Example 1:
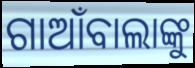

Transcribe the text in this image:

ଗାଆଁବାଲାଙ୍କୁ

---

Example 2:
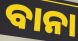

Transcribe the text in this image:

ବାନା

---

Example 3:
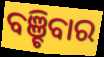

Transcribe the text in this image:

ବଞ୍ଚିବାର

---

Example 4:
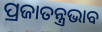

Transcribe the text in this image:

ପ୍ରଜାତନ୍ତ୍ରଭାବ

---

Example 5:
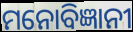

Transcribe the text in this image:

ମନୋବିଜ୍ଞାନୀ